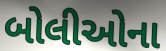
બોલીઓના